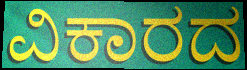
ವಿಕಾರದ